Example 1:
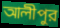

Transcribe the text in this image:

আলীপুর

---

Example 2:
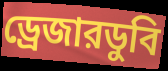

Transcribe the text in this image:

ড্রেজারডুবি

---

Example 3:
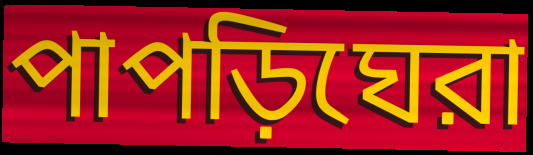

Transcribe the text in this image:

পাপড়িঘেরা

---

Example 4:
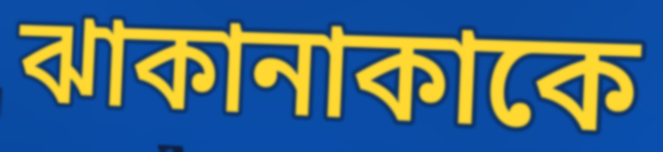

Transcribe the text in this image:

ঝাকানাকাকে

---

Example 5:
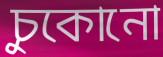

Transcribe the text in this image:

চুকোনো